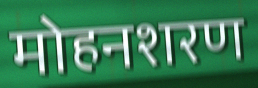
मोहनशरण